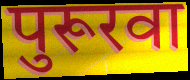
पुरूरवा